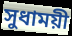
সুধাময়ী